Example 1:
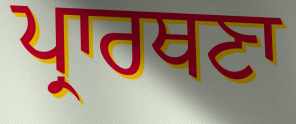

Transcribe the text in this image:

ਪ੍ਰਾਰਥਣਾ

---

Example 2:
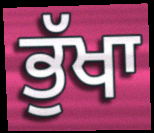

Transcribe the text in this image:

ਭੁੱਖਾ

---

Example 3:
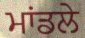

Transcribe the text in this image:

ਮਾਂਡਲੇ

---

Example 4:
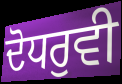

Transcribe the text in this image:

ਦੋਧਰੁਵੀ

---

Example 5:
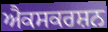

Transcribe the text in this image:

ਐਕਸਕਰਸ਼ਨ